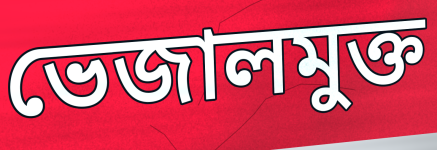
ভেজালমুক্ত